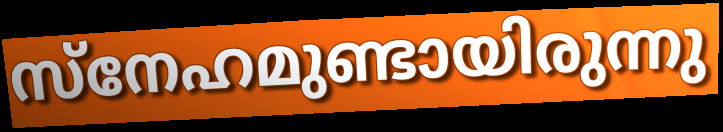
സ്നേഹമുണ്ടായിരുന്നു